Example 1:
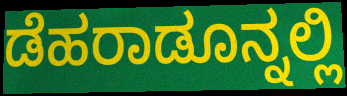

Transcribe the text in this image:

ಡೆಹರಾಡೂನ್ನಲ್ಲಿ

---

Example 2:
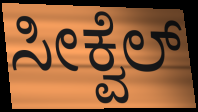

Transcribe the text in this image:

ಸೀಕ್ವೆಲ್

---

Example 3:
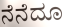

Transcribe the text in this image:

ನೆನೆದೂ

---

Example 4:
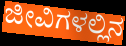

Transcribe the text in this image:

ಜೀವಿಗಳಲ್ಲಿನ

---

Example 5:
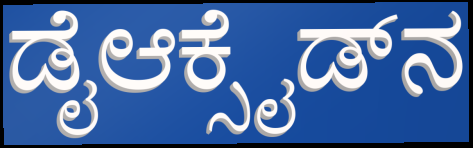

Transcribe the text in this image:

ಡೈಆಕ್ಸೈಡ್‌ನ